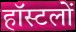
हॉस्टलों